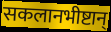
सकलानभीष्टान्